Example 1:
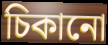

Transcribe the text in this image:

চিকানো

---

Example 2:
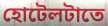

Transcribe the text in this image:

হোটেলটাতে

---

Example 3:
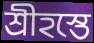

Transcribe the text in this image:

শ্রীহস্তে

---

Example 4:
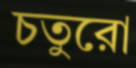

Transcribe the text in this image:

চতুরো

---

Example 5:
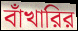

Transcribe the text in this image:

বাঁখারির